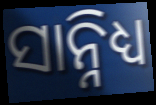
ସାନ୍ନିଧ୍ୟ